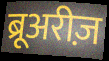
ब्रूअरीज़